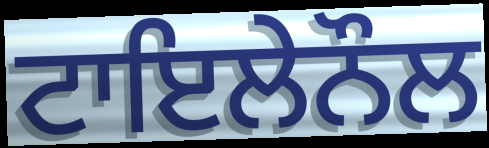
ਟਾਇਲੇਨੌਲ